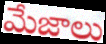
మేజాలు